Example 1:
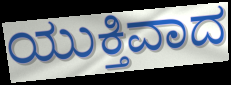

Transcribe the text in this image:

ಯುಕ್ತಿವಾದ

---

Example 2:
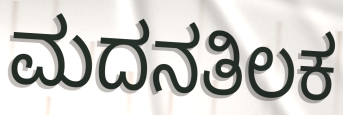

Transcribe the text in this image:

ಮದನತಿಲಕ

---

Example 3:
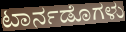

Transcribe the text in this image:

ಟಾರ್ನಡೊಗಳು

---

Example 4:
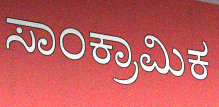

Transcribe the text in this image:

ಸಾಂಕ್ರಾಮಿಕ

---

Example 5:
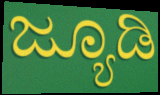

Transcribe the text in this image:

ಜ್ಯೂಡಿ